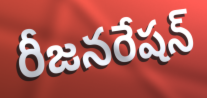
రీజనరేషన్